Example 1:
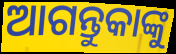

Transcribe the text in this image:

ଆଗନ୍ତୁକାଙ୍କୁ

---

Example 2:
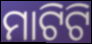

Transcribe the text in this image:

ମାଟିଟି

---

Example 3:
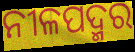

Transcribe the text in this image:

ନୀଳପଦ୍ମର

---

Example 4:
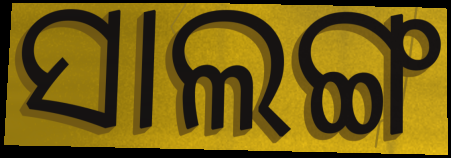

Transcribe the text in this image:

ସାଲଙ୍ଗ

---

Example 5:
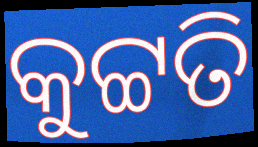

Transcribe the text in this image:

କୁଟ୍ଟତି